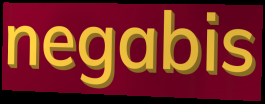
negabis